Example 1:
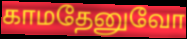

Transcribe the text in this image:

காமதேனுவோ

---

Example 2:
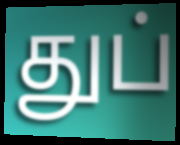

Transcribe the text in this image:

துப்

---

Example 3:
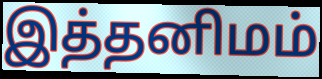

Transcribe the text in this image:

இத்தனிமம்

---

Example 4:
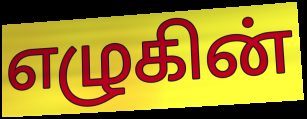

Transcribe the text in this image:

எழுகின்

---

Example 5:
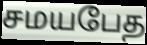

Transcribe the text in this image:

சமயபேத